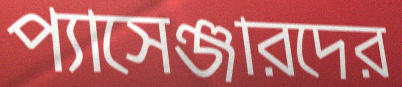
প্যাসেঞ্জারদের